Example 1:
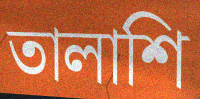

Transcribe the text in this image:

তালাশি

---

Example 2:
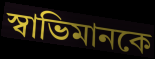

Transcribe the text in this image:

স্বাভিমানকে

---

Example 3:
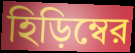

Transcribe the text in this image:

হিড়িম্বের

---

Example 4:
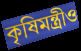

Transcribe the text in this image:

কৃষিমন্ত্রীও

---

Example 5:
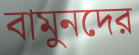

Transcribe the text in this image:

বামুনদের